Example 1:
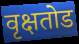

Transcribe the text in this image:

वृक्षतोड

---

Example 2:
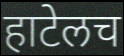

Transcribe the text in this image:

हाटेलच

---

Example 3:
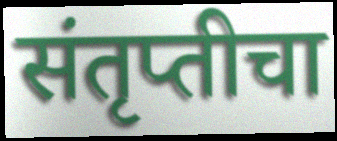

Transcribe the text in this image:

संतृप्तीचा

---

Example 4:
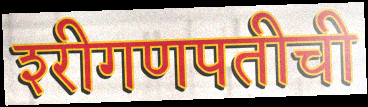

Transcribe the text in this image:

श्रीगणपतीची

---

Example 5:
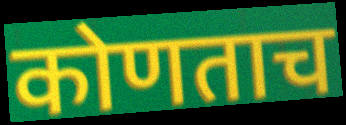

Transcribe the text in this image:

कोणताच